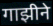
गाझीने